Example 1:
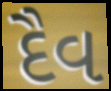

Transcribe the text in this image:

દૈવ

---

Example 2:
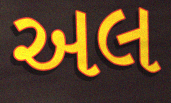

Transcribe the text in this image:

અલ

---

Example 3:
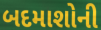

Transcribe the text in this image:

બદમાશોની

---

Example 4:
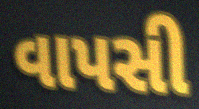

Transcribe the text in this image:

વાપસી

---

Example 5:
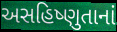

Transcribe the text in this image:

અસહિષ્ણુતાનાં